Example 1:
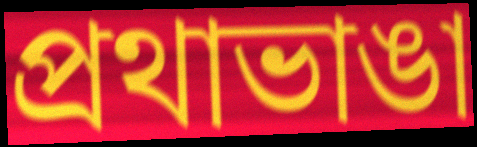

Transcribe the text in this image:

প্রথাভাঙা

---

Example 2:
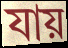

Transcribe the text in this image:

যায়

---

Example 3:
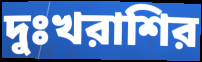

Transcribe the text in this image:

দুঃখরাশির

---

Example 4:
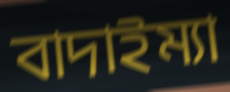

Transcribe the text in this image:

বাদাইম্যা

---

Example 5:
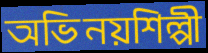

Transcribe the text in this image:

অভিনয়শিল্পী